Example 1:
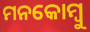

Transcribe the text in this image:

ମନକୋମ୍ବୁ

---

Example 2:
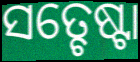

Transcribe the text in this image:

ସତ୍ଚେଷ୍ଟା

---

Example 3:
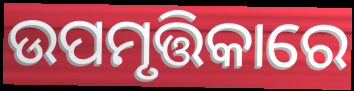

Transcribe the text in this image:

ଉପମୃତ୍ତିକାରେ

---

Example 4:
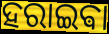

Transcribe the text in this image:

ହରାଇଵା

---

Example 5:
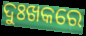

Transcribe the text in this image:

ଦୁଃଖକରେ